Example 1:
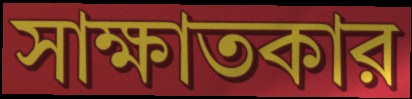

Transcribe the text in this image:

সাক্ষাতকার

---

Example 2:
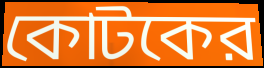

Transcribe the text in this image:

কোটকের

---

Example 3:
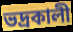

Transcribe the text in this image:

ভদ্রকালী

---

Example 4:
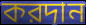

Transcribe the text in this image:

করদান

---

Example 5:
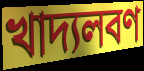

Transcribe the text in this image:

খাদ্যলবণ